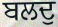
ਬਲਦੁ